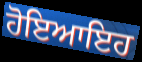
ਹੋਇਆਇਹ